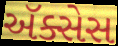
ઍક્સેસ